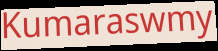
Kumaraswmy